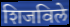
शिजविले